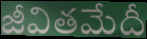
జీవితమేదీ